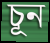
চূন